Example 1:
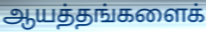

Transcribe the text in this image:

ஆயத்தங்களைக்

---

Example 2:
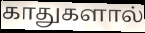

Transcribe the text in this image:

காதுகளால்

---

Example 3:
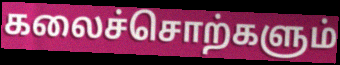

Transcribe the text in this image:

கலைச்சொற்களும்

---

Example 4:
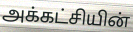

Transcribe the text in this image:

அக்கட்சியின்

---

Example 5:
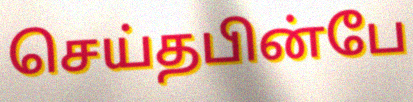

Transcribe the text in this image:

செய்தபின்பே